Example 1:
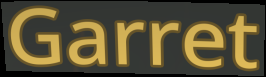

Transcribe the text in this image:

Garret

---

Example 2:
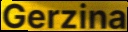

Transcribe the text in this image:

Gerzina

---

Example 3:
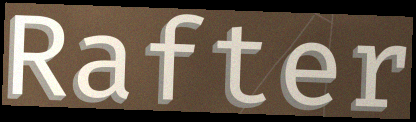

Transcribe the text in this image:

Rafter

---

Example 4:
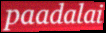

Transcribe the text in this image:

paadalai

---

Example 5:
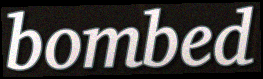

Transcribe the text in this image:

bombed